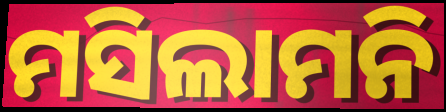
ମସିଲାମନି